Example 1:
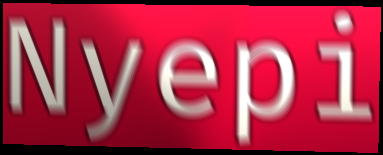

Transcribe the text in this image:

Nyepi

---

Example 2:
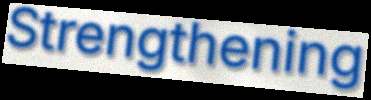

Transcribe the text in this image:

Strengthening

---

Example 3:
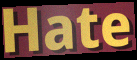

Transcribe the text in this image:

Hate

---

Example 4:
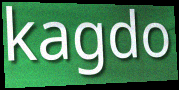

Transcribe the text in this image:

kagdo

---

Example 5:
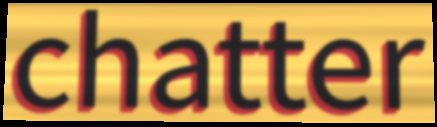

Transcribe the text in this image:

chatter